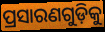
ପ୍ରସାରଣଗୁଡ଼ିକୁ